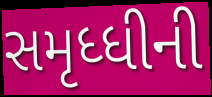
સમૃધ્ધીની